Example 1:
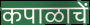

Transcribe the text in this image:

कपाळाचें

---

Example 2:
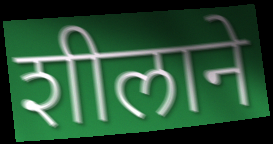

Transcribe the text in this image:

शीलाने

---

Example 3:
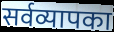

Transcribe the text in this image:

सर्वव्यापका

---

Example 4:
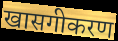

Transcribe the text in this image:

खासगीकरण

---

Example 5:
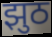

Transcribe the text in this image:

झुठ